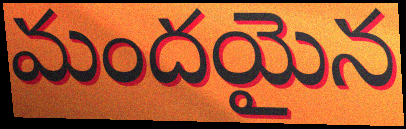
మందయైన